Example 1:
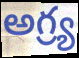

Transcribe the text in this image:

అగ్ర్య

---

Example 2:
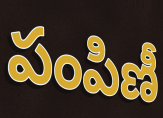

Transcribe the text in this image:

పంపిణీ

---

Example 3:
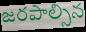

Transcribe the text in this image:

జరపాల్సిన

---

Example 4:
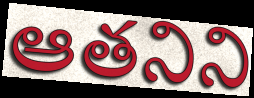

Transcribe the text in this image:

ఆతనిని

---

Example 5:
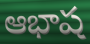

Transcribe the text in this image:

ఆభాష